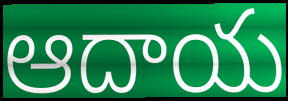
ఆదాయ